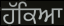
ਹੱਕਿਆ